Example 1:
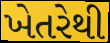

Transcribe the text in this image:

ખેતરેથી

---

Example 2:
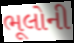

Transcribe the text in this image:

ભૂલોની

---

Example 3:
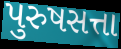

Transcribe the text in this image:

પુરુષસત્તા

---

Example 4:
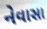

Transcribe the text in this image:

નેવાસા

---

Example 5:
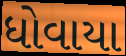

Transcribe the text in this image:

ધોવાયા